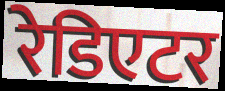
रेडिएटर